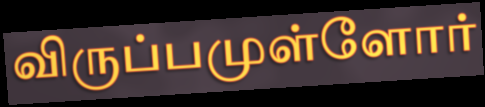
விருப்பமுள்ளோர்